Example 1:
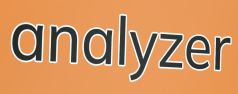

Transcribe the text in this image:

analyzer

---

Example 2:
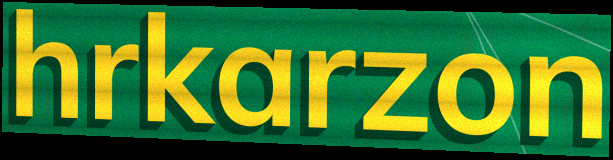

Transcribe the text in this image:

hrkarzon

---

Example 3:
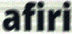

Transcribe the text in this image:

afiri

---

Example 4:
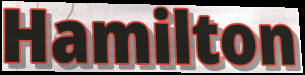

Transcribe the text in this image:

Hamilton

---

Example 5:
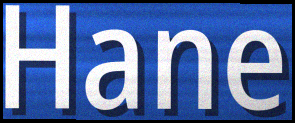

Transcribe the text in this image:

Hane